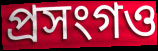
প্ৰসংগও